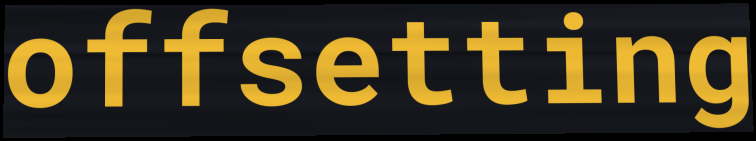
offsetting